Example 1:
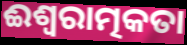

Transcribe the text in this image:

ଈଶ୍ଵରାତ୍ମକତା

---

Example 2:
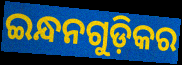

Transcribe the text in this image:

ଇନ୍ଧନଗୁଡ଼ିକର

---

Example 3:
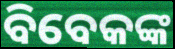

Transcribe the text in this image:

ବିବେକଙ୍କ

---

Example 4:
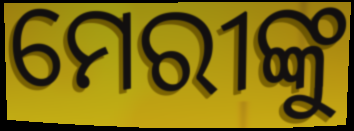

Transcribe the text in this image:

ମେରୀଙ୍କୁ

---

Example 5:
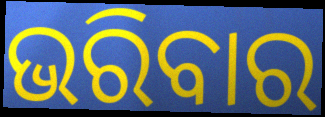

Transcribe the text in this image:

ଭରିବାର